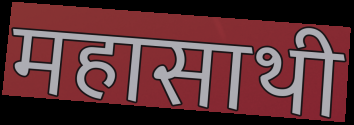
महासाथी